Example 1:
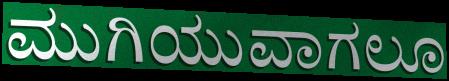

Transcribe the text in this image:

ಮುಗಿಯುವಾಗಲೂ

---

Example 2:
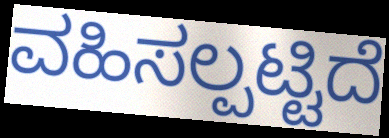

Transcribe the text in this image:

ವಹಿಸಲ್ಪಟ್ಟಿದೆ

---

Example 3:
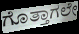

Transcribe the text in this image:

ಗೊತ್ತಾಗಲೇ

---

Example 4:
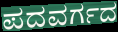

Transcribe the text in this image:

ಪದವರ್ಗದ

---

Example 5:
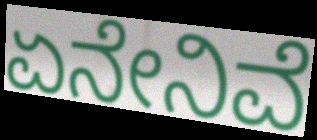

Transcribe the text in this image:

ಏನೇನಿವೆ